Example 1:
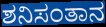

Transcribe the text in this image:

ಶನಿಸಂತಾನ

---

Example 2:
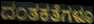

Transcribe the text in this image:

ದಂತಕತೆಗಳೂ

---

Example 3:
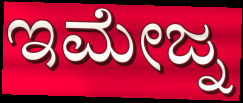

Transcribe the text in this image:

ಇಮೇಜ್ನ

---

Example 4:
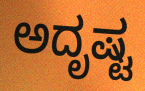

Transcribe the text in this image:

ಅದೃಷ್ಟ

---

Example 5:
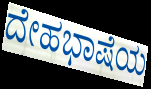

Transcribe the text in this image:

ದೇಹಭಾಷೆಯ